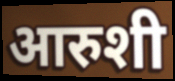
आरुशी